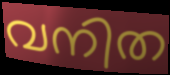
വനിത